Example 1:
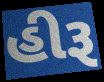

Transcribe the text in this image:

હીરૂ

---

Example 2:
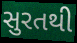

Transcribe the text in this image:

સુરતથી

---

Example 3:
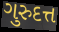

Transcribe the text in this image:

ગુરુદત્ત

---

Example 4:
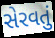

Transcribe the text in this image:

સેરવતું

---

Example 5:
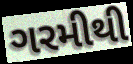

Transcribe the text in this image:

ગરમીથી